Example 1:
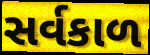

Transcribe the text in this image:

સર્વકાળ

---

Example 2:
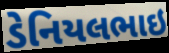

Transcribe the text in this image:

ડેનિયલભાઇ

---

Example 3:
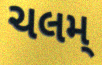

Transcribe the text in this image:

ચલમ્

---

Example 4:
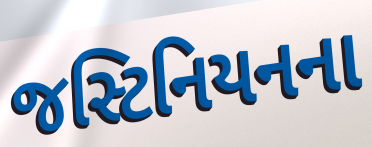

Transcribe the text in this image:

જસ્ટિનિયનના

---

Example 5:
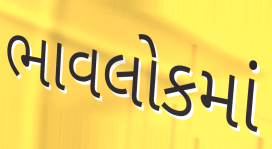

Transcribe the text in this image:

ભાવલોકમાં